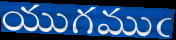
యుగముఁ